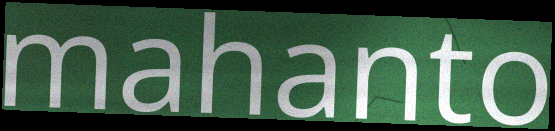
mahanto